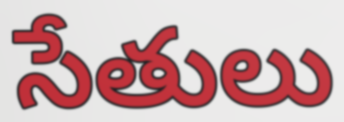
సేతులు